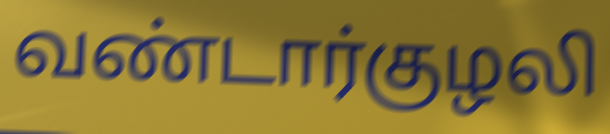
வண்டார்குழலி